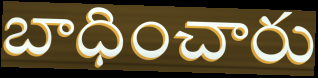
బాధించారు